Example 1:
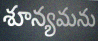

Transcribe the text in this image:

శూన్యమను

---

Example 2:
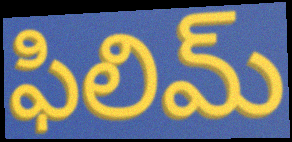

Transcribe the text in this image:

ఫిలిమ్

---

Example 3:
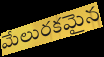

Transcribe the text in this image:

మేలురకమైన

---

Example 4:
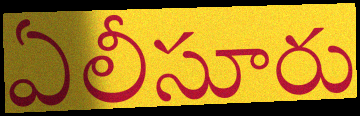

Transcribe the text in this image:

ఏలీసూరు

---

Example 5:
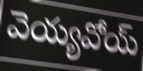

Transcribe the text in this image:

వెయ్యవోయ్